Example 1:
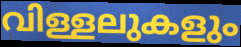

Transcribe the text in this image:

വിള്ളലുകളും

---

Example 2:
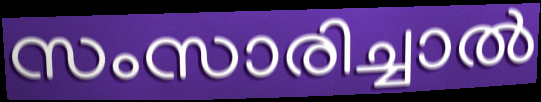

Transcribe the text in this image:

സംസാരിച്ചാൽ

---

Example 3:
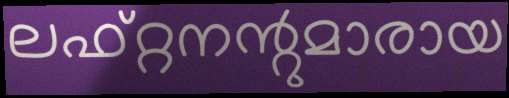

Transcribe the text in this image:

ലഫ്റ്റനന്റുമാരായ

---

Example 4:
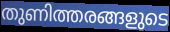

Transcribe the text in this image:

തുണിത്തരങ്ങളുടെ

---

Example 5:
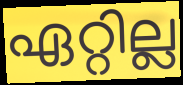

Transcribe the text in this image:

ഏറ്റില്ല